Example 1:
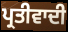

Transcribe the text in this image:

ਪ੍ਰਤੀਵਾਦੀ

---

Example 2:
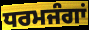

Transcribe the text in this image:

ਧਰਮਜੰਗਾਂ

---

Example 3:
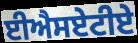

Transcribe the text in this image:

ਈਐਸਏਟੀਏ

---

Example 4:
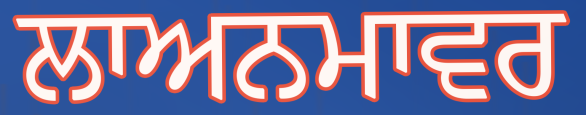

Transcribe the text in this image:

ਲਾਅਨਮਾਵਰ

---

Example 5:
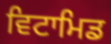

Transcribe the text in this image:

ਵਿਟਾਮਿਡ